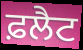
ਫ਼ਲੈਟ